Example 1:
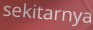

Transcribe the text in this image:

sekitarnya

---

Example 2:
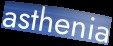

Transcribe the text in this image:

asthenia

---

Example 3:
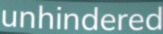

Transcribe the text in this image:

unhindered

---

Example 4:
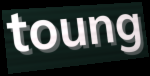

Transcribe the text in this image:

toung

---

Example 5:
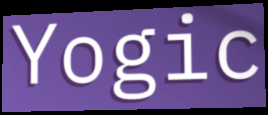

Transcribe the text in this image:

Yogic